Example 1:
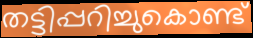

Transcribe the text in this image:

തട്ടിപ്പറിച്ചുകൊണ്ട്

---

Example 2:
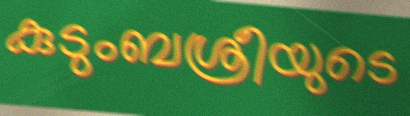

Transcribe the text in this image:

കുടുംബശ്രീയുടെ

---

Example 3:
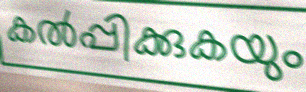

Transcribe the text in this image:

കൽപ്പിക്കുകയും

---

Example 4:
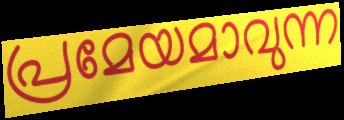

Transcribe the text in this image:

പ്രമേയമാവുന്ന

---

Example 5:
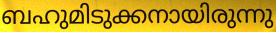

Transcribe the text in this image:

ബഹുമിടുക്കനായിരുന്നു